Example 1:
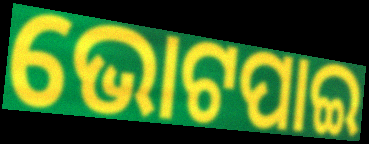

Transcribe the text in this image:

ଭୋଟପାଇ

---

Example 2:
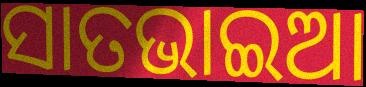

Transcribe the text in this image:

ସାତଭାଇଆ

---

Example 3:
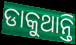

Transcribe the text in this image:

ଡାକୁଥାନ୍ତି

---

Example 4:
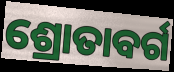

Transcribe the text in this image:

ଶ୍ରୋତାବର୍ଗ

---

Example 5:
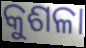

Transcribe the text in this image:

କୁଶଳା